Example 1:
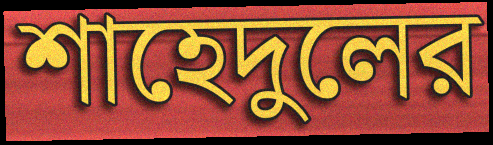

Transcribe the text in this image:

শাহেদুলের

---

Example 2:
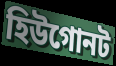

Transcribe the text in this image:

হিউগোনট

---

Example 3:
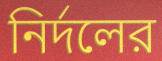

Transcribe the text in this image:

নির্দলের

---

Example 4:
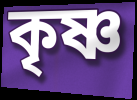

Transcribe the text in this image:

কৃষ্ণ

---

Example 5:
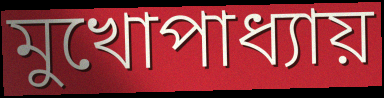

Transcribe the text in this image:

মুখোপাধ্যায়